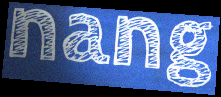
nang